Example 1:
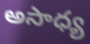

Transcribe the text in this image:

అసాధ్య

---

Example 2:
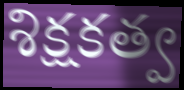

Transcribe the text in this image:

శిక్షకత్వ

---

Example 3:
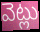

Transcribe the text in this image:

వెట్లు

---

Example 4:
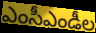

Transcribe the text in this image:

ఎంసీఎండీల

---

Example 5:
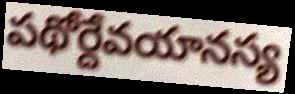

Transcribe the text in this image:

పథోర్దేవయానస్య